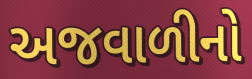
અજવાળીનો